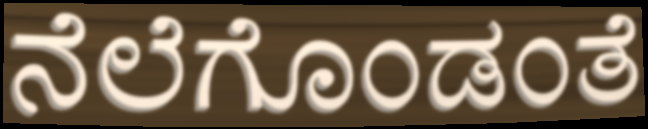
ನೆಲೆಗೊಂಡಂತೆ